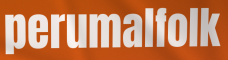
perumalfolk